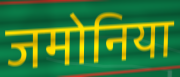
जमोनिया